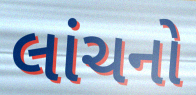
લાંચનો